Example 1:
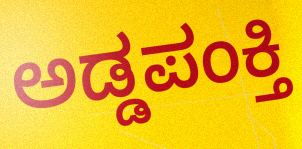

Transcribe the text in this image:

ಅಡ್ಡಪಂಕ್ತಿ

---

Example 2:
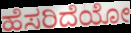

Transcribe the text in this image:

ಹೆಸರಿದೆಯೋ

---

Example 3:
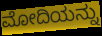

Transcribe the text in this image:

ಮೋದಿಯನ್ನು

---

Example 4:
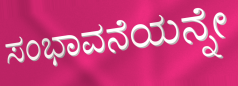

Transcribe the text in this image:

ಸಂಭಾವನೆಯನ್ನೇ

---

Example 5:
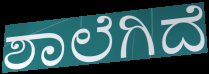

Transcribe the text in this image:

ಶಾಲೆಗಿದೆ